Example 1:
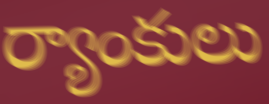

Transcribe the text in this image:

ర్యాంకులు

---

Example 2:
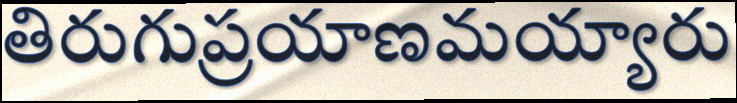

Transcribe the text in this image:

తిరుగుప్రయాణమయ్యారు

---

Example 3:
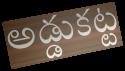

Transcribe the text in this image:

అడ్డుకట్ట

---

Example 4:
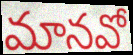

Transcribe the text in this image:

మానవో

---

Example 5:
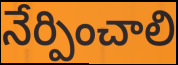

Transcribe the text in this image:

నేర్పించాలి